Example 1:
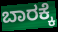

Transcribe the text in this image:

ಬಾರಕ್ಕೆ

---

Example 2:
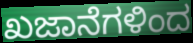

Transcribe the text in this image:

ಖಜಾನೆಗಳಿಂದ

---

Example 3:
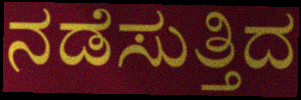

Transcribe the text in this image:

ನಡೆಸುತ್ತಿದ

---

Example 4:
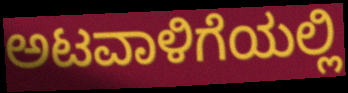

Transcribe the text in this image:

ಅಟವಾಳಿಗೆಯಲ್ಲಿ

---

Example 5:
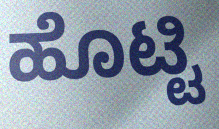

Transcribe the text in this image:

ಹೊಟ್ಟಿ